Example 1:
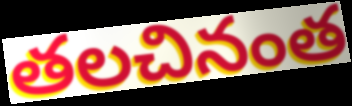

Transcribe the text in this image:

తలచినంత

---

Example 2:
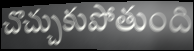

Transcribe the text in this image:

చొచ్చుకుపోతుంది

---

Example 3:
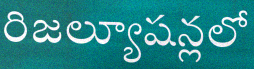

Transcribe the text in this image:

రిజల్యూషన్లలో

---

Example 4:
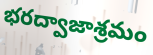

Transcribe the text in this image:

భరద్వాజాశ్రమం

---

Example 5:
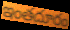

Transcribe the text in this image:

ఇంతదూరం